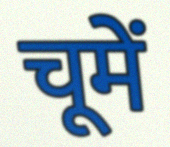
चूमें